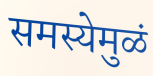
समस्येमुळं